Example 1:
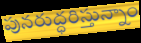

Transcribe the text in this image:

పునరుద్ధరిస్తున్నాం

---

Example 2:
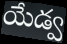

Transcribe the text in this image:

యేడ్వ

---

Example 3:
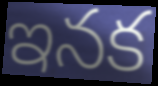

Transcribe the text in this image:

ఇనక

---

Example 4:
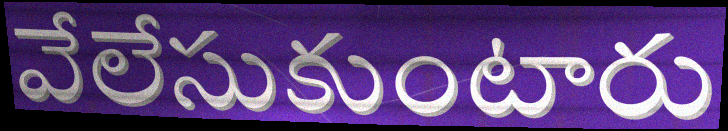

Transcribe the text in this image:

వేలేసుకుంటారు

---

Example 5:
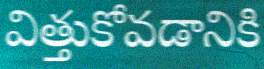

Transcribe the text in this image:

విత్తుకోవడానికి